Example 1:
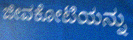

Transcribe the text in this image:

ಜೀವಕೋಟಿಯನ್ನು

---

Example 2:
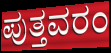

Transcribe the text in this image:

ಪುತ್ತವರಂ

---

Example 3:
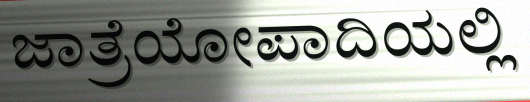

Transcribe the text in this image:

ಜಾತ್ರೆಯೋಪಾದಿಯಲ್ಲಿ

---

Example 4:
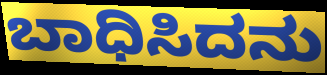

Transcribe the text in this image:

ಬಾಧಿಸಿದನು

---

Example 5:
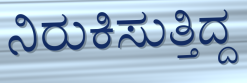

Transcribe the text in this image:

ನಿರುಕಿಸುತ್ತಿದ್ದ